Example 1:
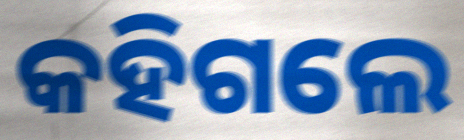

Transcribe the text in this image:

କହିଗଲେ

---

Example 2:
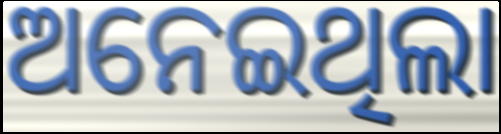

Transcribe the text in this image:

ଅନେଇଥିଲା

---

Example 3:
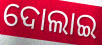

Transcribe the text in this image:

ଦୋଲାଇ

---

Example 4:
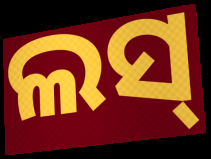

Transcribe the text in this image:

ଲସ୍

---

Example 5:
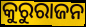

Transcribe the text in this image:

କୁରୁରାଜନ